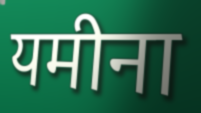
यमीना